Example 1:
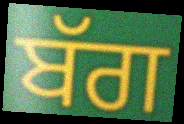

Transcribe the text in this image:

ਬੱਗ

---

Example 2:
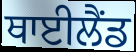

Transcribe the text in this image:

ਥਾਈਲੈਂਡ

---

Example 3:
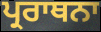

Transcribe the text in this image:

ਪ੍ਰਰਾਥਨਾ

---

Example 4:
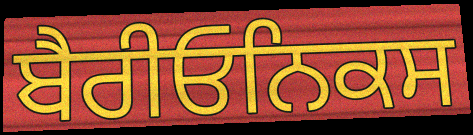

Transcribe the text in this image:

ਬੈਰੀਓਨਿਕਸ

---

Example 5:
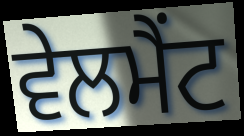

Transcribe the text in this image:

ਵੇਲਮੈਂਟ